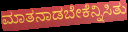
ಮಾತನಾಡಬೇಕೆನ್ನಿಸಿತು